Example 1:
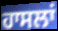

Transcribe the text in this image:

ਹਾਸਲਾਂ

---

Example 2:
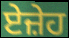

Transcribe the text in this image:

ਏਜ਼ੇਹ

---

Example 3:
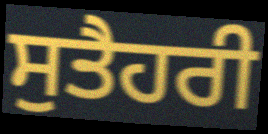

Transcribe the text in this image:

ਸੁਤੈਹਰੀ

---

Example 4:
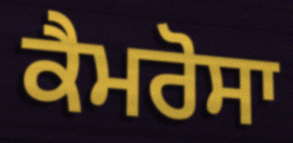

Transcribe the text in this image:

ਕੈਮਰੋਸਾ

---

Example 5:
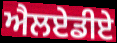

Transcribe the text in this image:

ਐਲਏਡੀਏ